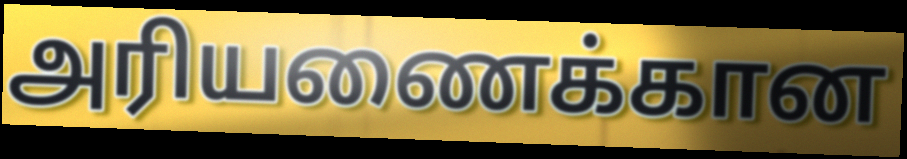
அரியணைக்கான